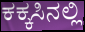
ಕಕ್ಕಸಿನಲ್ಲಿ